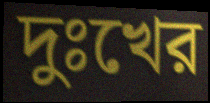
দুঃখের